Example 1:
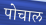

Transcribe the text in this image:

पोचाल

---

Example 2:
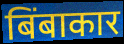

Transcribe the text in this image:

बिंबाकार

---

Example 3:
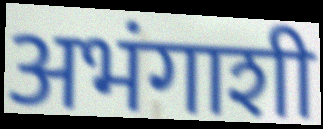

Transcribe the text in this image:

अभंगाशी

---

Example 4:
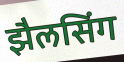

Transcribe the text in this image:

झैलसिंग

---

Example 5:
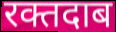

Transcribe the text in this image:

रक्तदाब